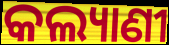
କଲ୍ୟାଣୀ